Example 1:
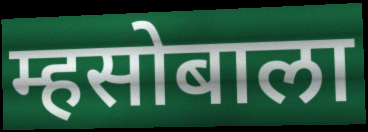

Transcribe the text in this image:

म्हसोबाला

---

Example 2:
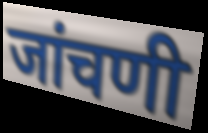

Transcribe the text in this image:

जांचणी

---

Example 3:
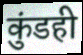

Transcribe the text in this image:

कुंडही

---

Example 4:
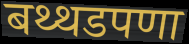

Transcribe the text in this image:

बथ्थडपणा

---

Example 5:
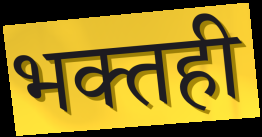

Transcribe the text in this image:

भक्तही